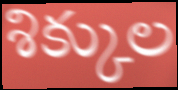
శిక్కుల